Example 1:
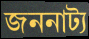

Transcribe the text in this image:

জননাট্য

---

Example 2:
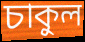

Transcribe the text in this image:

চাকুল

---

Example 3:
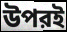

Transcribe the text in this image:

উপরই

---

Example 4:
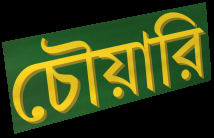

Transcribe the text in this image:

চৌয়ারি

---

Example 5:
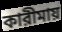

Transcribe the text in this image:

কারীমায়